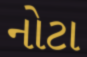
નોટા